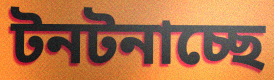
টনটনাচ্ছে